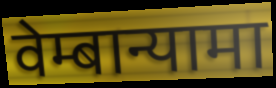
वेम्बान्यामा